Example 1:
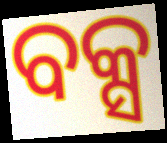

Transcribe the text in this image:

ବକ୍ସ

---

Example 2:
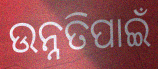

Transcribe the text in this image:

ଉନ୍ନତିପାଇଁ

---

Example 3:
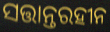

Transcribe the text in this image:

ସତ୍ତାନ୍ତରହୀନ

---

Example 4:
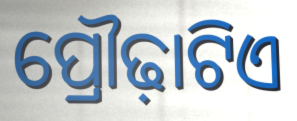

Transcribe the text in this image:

ପ୍ରୌଢ଼ାଟିଏ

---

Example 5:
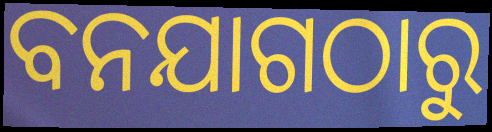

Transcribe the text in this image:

ବନଯାଗଠାରୁ